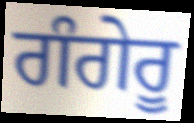
ਗੰਗੇਰੂ